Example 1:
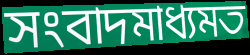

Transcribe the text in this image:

সংবাদমাধ্যমত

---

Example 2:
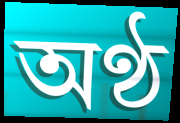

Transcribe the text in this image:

অণ্ঠ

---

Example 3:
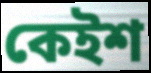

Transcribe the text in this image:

কেইশ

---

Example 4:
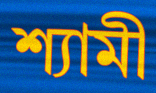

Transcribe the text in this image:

শ্যামী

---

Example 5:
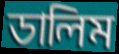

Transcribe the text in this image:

ডালিম